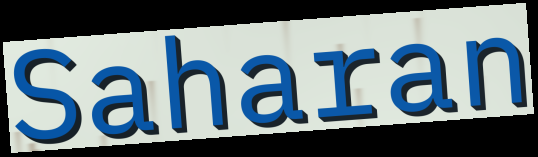
Saharan